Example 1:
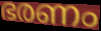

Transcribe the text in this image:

ഭരണം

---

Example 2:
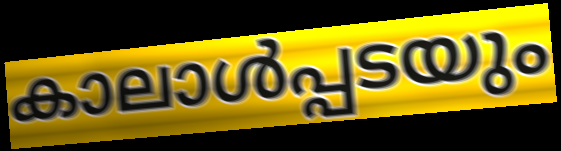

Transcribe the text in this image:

കാലാൾപ്പടയും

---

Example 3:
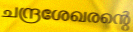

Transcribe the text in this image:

ചന്ദ്രശേഖരന്റെ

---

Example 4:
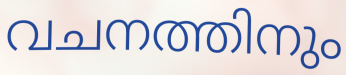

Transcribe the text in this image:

വചനത്തിനും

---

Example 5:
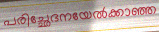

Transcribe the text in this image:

പരിച്ഛേദനയേൽക്കാഞ്ഞ